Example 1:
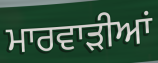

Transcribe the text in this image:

ਮਾਰਵਾੜੀਆਂ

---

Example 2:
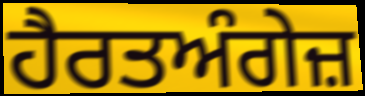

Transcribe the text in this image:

ਹੈਰਤਅੰਗੇਜ਼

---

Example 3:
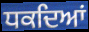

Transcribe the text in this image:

ਧਕਦਿਆਂ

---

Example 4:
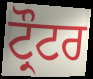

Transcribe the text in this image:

ਟ੍ਰੌਟਰ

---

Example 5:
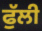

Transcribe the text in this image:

ਫੁੱਲੀ